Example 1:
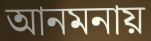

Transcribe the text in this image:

আনমনায়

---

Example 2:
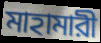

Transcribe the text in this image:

মাহামারী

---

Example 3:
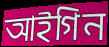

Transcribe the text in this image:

আইগিন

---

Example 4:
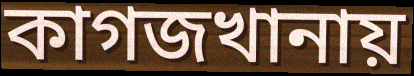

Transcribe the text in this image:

কাগজখানায়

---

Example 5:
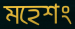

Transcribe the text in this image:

মহেশং